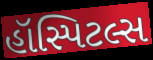
હૉસ્પિટલ્સ